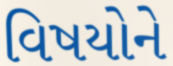
વિષયોને